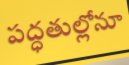
పద్ధతుల్లోనూ